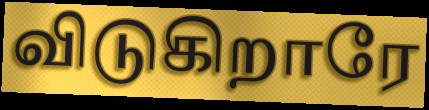
விடுகிறாரே